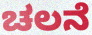
ಚಲನೆ